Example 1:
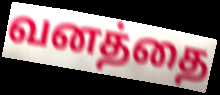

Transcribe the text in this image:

வனத்தை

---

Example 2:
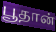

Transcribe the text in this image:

பூதான்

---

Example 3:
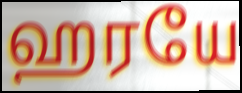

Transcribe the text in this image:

ஹரயே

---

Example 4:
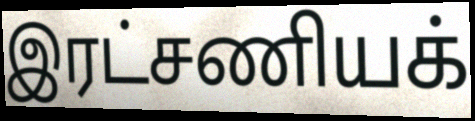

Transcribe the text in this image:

இரட்சணியக்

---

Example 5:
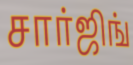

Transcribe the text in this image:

சார்ஜிங்